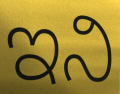
ಇನಿ